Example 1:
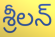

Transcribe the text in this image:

శ్రీలన్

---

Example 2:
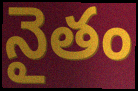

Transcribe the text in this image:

నైతం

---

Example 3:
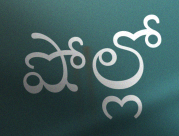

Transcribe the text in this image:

షోల్లో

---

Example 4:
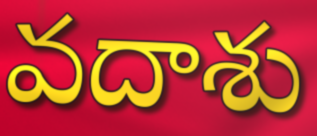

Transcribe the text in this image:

వదాశు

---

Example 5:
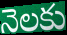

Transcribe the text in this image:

నెలకు